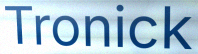
Tronick